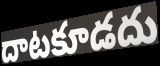
దాటకూడదు